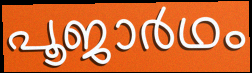
പൂജാർഥം